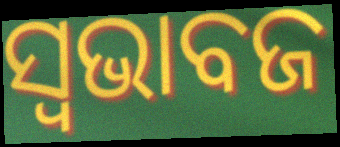
ସ୍ୱଭାବଜ